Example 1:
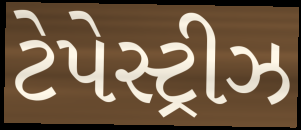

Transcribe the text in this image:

ટેપેસ્ટ્રીઝ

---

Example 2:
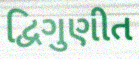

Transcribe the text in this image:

દ્વિગુણીત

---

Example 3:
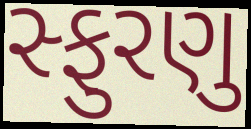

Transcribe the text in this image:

સ્ફુરણુ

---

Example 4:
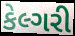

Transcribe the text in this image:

કેલ્ગરી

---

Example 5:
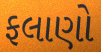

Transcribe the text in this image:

ફલાણો